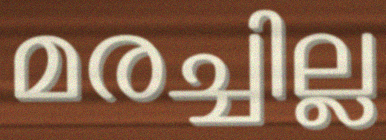
മരച്ചില്ല